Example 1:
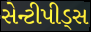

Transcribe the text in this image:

સેન્ટીપીડ્સ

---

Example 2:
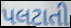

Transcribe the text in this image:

પલટાતી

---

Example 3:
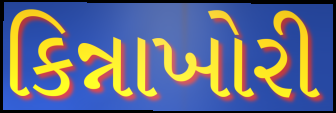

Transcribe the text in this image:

કિન્નાખોરી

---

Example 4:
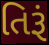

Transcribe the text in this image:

તિરૂં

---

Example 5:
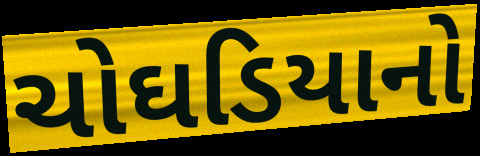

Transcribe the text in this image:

ચોઘડિયાનો